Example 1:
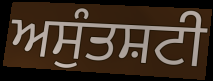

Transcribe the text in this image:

ਅਸੁੰਤਸ਼ਟੀ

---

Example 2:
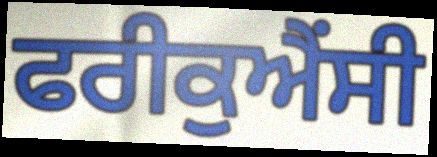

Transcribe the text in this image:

ਫਰੀਕੁਐਂਸੀ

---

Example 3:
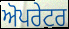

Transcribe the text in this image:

ਅੋਪਰੇਟਰ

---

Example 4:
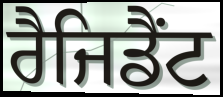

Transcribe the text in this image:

ਰੈਜਿਡੈਂਟ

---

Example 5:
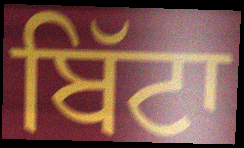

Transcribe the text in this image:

ਬਿੱਟਾ